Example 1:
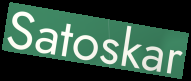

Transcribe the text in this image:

Satoskar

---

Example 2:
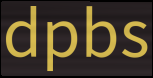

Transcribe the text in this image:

dpbs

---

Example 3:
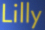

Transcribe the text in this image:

Lilly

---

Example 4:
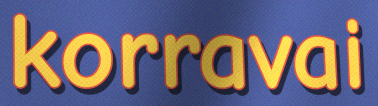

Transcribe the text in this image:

korravai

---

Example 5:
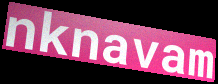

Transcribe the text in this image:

nknavam